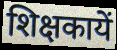
शिक्षकायें